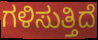
ಗಳಿಸುತ್ತಿದೆ